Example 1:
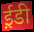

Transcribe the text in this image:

ई़डी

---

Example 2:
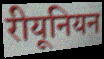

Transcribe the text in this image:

रीयूनियन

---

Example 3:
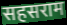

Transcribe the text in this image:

सहसराम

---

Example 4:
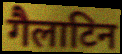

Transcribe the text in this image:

गैलाटिन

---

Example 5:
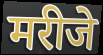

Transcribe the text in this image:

मरीजे